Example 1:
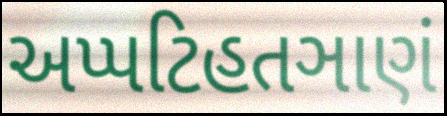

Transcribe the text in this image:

અપ્પટિહતઞાણં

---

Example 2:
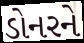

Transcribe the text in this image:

ડોનરને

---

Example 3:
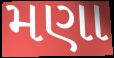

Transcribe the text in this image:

મણા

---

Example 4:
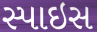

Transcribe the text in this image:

સ્પાઇસ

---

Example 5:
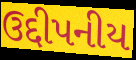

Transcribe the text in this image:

ઉદ્દીપનીય